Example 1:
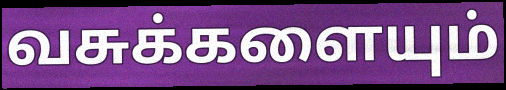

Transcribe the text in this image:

வசுக்களையும்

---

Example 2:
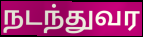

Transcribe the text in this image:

நடந்துவர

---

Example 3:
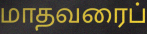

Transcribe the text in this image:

மாதவரைப்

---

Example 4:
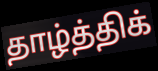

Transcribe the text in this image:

தாழ்த்திக்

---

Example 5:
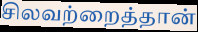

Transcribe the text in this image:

சிலவற்றைத்தான்